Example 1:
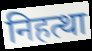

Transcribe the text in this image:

निहत्था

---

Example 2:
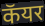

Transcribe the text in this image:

कॅयर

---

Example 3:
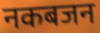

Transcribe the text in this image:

नकबजन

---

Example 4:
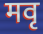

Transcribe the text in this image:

मवृ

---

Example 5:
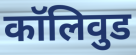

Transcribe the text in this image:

कॉलिवुड